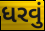
ધરવું